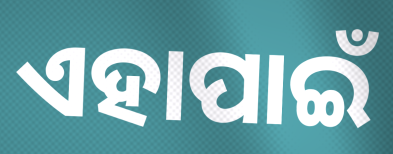
ଏହାପାଇଁ